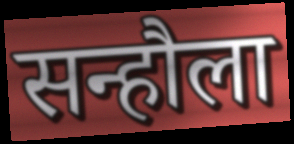
सन्हौला